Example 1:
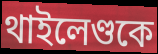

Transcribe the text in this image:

থাইলেণ্ডকে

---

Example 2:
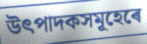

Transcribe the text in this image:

উৎপাদকসমূহেৰে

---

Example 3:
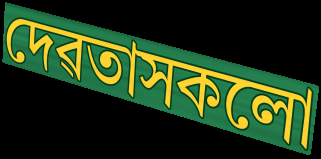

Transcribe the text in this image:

দেৱতাসকলো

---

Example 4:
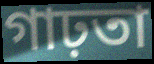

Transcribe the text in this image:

গাঢ়তা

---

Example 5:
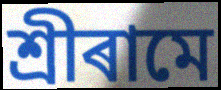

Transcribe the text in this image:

শ্ৰীৰামে